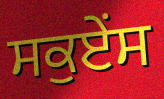
ਸਕੁਏਂਸ